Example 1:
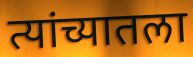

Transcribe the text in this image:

त्यांच्यातला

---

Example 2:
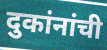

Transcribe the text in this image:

दुकांनांची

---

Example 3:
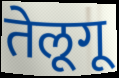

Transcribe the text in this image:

तेलूगू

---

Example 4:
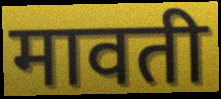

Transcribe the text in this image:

मावती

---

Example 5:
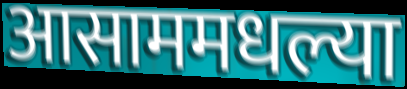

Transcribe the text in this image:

आसाममधल्या